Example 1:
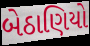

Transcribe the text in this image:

બેઠાણિયો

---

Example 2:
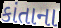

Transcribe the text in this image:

કાંતાના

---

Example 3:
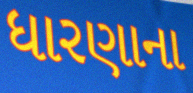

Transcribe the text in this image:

ધારણાના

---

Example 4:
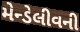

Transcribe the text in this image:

મેન્ડેલીવની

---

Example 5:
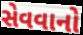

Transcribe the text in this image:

સેવવાનો